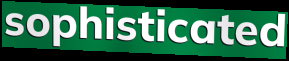
sophisticated